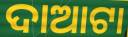
ଦାଆଟା